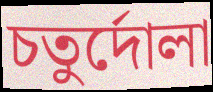
চতুর্দোলা